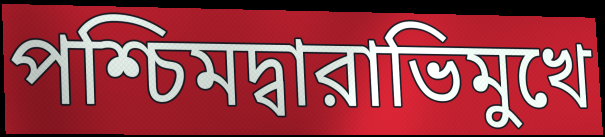
পশ্চিমদ্বারাভিমুখে